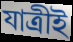
যাত্রীই